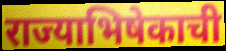
राज्याभिषेकाची